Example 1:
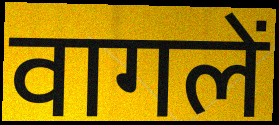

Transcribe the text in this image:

वागलें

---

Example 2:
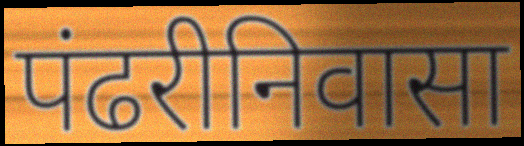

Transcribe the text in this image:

पंढरीनिवासा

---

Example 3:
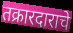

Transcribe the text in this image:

तक्रारदाराचे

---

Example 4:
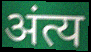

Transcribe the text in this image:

अंत्य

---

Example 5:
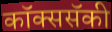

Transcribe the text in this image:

कॉक्ससॅकी